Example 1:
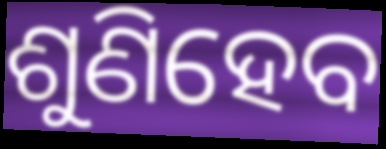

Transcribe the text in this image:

ଶୁଣିହେବ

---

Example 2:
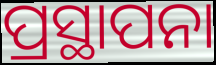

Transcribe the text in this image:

ପ୍ରସ୍ଥାପନା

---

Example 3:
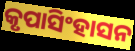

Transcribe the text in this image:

କୃପାସିଂହାସନ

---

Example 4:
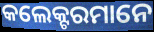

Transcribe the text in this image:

କଲେକ୍ଟରମାନେ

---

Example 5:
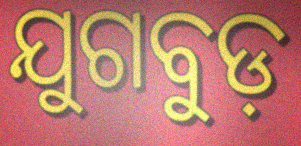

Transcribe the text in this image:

ଯୁଗବୁଡ଼